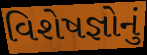
વિશેષજ્ઞોનું